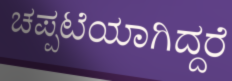
ಚಪ್ಪಟೆಯಾಗಿದ್ದರೆ